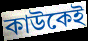
কাউকেই